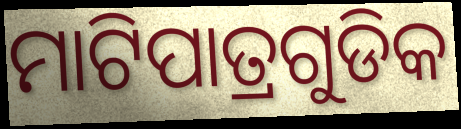
ମାଟିପାତ୍ରଗୁଡିକ